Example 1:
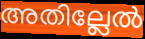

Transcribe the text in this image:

അതില്ലേൽ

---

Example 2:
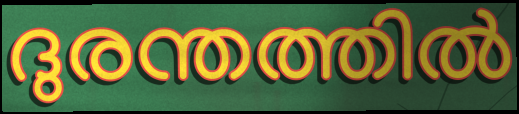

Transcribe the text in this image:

ദുരന്തത്തിൽ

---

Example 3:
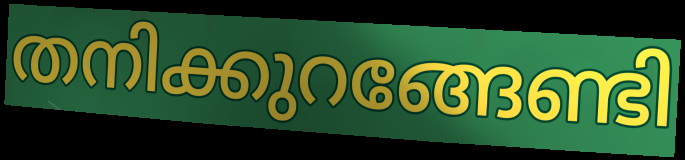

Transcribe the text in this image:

തനിക്കുറങ്ങേണ്ടി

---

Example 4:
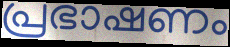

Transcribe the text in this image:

പ്രഭാഷണം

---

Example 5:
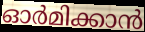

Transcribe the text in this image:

ഓർമിക്കാൻ